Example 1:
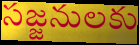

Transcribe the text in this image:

సజ్జనులకు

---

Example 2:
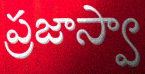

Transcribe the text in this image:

ప్రజాస్వా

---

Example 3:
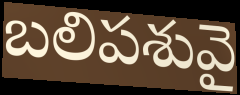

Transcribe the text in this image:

బలిపశువై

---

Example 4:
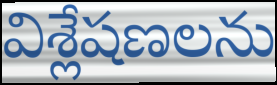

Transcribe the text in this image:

విశ్లేషణలను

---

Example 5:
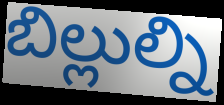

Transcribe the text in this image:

బిల్లుల్ని